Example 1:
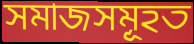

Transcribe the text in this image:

সমাজসমূহত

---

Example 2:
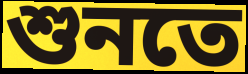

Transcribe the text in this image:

শুনতে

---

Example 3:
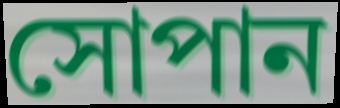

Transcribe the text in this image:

সোপান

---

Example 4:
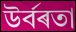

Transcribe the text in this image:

উৰ্বৰতা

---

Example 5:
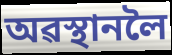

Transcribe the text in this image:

অৱস্থানলৈ